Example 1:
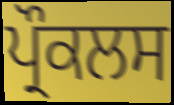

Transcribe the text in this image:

ਪ੍ਰੌਕਲਸ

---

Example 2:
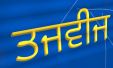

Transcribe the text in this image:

ਤਜਵੀਜ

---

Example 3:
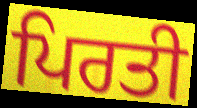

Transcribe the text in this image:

ਪਿਰਤੀ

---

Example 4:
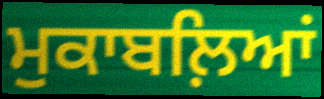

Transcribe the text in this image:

ਮੁਕਾਬਲ਼ਿਆਂ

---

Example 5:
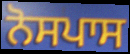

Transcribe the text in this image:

ਨੋਸਪਾਸ